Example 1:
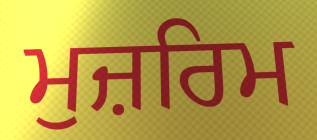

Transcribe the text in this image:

ਮੁਜ਼ਰਿਮ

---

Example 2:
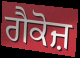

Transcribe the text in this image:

ਗੈਕੋਜ਼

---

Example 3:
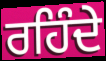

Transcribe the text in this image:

ਰਹਿੰਦੇ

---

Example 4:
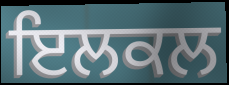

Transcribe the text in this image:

ਇਲਕਲ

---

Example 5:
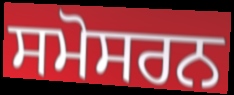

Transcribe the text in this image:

ਸਮੋਸਰਨ